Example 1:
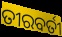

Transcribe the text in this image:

ତୀରବର୍ତୀ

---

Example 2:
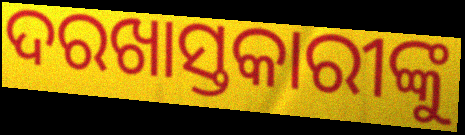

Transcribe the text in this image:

ଦରଖାସ୍ତକାରୀଙ୍କୁ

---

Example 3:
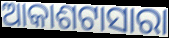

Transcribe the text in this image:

ଆକାଶଟାସାରା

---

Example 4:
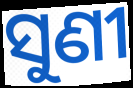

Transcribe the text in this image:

ସୁଣୀ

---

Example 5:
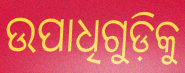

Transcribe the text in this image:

ଉପାଧିଗୁଡ଼ିକୁ